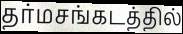
தர்மசங்கடத்தில்